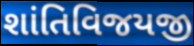
શાંતિવિજયજી